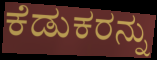
ಕೆಡುಕರನ್ನು